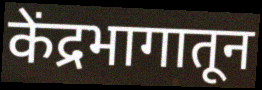
केंद्रभागातून